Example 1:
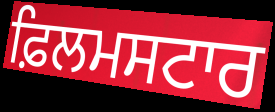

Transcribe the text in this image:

ਫ਼ਿਲਮਸਟਾਰ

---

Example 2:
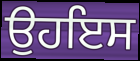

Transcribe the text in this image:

ਉਹਇਸ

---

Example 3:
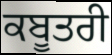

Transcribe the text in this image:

ਕਬੂਤਰੀ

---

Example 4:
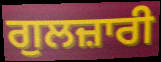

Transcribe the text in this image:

ਗੁਲਜ਼ਾਰੀ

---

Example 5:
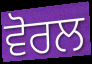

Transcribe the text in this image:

ਵੋਰਲ